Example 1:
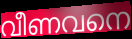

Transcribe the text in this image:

വീണവനെ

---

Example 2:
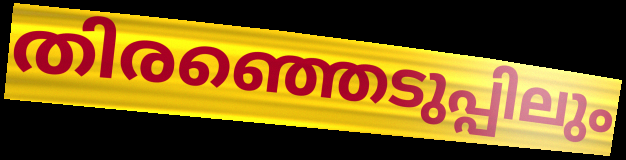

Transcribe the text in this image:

തിരഞ്ഞെടുപ്പിലും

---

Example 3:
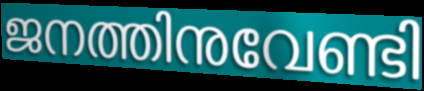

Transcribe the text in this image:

ജനത്തിനുവേണ്ടി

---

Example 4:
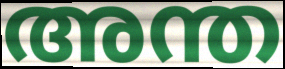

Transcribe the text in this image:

അന്ത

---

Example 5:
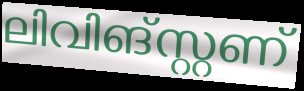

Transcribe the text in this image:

ലിവിങ്സ്റ്റണ്